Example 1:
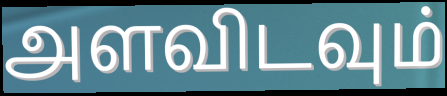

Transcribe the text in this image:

அளவிடவும்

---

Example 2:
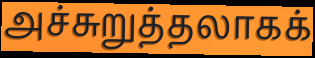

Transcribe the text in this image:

அச்சுறுத்தலாகக்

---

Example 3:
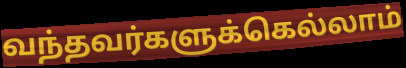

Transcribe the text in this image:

வந்தவர்களுக்கெல்லாம்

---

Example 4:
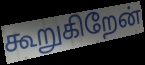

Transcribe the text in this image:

கூறுகிறேன்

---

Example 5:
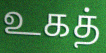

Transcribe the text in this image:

உகத்